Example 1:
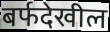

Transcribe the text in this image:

बर्फदेखील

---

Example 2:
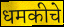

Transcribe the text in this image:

धमकीचे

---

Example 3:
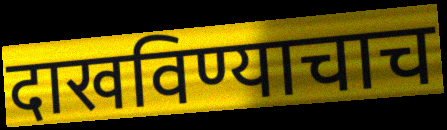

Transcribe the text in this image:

दाखविण्याचाच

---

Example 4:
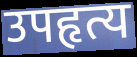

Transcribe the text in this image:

उपहृत्य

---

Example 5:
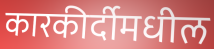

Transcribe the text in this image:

कारकीर्दीमधील